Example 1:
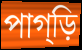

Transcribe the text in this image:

পাগ্ড়ি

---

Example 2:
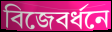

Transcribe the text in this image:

বিজেবর্ধনে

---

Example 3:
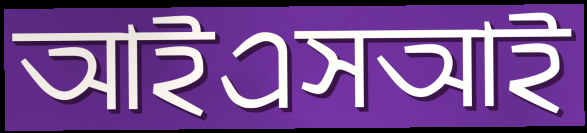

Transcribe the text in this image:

আইএসআই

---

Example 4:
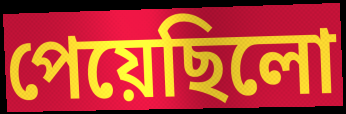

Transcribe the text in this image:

পেয়েছিলো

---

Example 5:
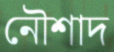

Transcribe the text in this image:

নৌশাদ